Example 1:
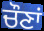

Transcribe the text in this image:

ਚੌਣਾਂ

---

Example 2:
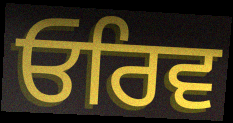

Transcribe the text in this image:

ਓਰਿਵ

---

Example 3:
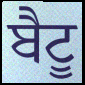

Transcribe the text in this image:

ਬੈਟੂ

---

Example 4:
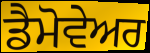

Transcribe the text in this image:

ਡੈਮੋਵੇਅਰ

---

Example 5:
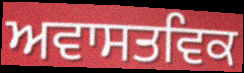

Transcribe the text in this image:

ਅਵਾਸਤਵਿਕ